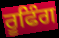
ਰੂਫਿੰਗ